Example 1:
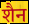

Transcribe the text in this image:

शैन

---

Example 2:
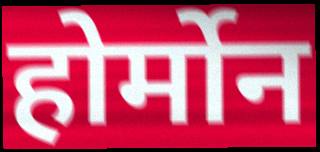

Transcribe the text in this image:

होर्मोन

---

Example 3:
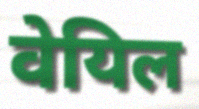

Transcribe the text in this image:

वेयिल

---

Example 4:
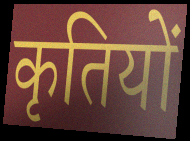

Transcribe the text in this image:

कृतियों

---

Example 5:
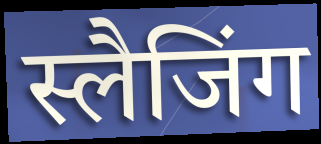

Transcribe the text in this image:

स्लैजिंग